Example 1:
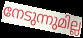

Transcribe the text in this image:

നേടുന്നുമില്ല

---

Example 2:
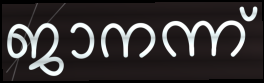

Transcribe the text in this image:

ജാനന്ന്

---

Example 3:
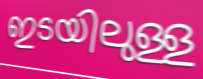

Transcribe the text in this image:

ഇടയിലുള്ള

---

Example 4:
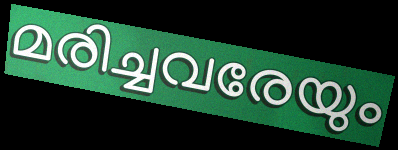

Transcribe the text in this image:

മരിച്ചവരേയും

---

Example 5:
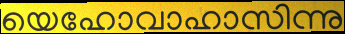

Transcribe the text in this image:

യെഹോവാഹാസിന്നു